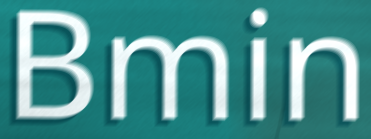
Bmin